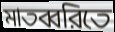
মাতব্বরিতে